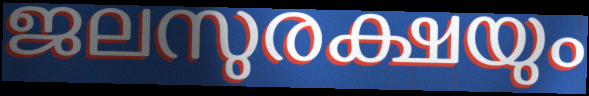
ജലസുരക്ഷയും